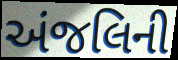
અંજલિની